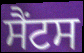
ਸੈਂਟਸ